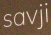
savji